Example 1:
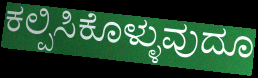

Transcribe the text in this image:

ಕಲ್ಪಿಸಿಕೊಳ್ಳುವುದೂ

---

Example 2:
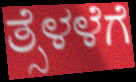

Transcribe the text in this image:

ತ್ಸೆಳಳೆಗೆ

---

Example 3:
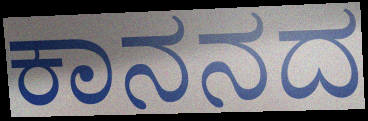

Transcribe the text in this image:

ಕಾನನದ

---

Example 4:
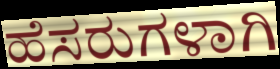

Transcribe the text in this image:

ಹೆಸರುಗಳಾಗಿ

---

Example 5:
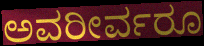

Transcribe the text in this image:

ಅವರೀರ್ವರೂ